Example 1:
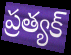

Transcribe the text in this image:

ప్రత్యక్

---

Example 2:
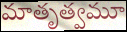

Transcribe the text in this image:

మాతృత్వమూ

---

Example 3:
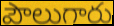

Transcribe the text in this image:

పౌలుగారు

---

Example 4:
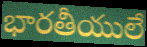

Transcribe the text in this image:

భారతీయులే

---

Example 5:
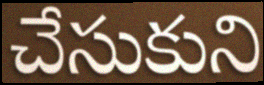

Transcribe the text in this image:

చేసుకుని